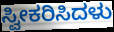
ಸ್ವೀಕರಿಸಿದಳು